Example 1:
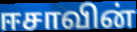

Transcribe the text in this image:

ஈசாவின்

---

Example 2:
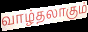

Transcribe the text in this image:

வாழ்தலாகும்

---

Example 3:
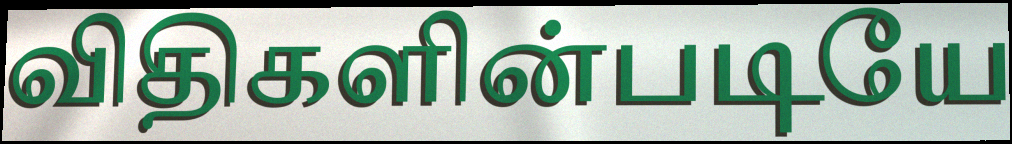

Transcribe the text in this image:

விதிகளின்படியே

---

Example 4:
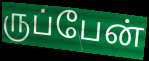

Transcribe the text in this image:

ருப்பேன்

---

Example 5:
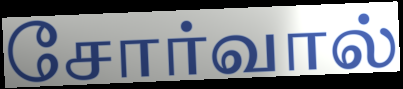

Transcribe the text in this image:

சோர்வால்